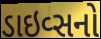
ડાઇવ્સનો